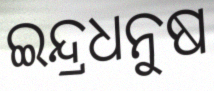
ଇନ୍ଦ୍ରଧନୁଷ